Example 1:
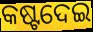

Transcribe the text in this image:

କଷ୍ଟଦେଇ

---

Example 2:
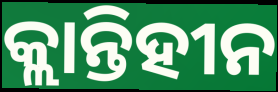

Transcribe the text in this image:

କ୍ଲାନ୍ତିହୀନ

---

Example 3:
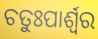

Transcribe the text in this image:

ଚତୁଃପାର୍ଶ୍ଵର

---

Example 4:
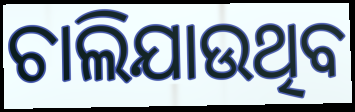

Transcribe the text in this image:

ଚାଲିଯାଉଥିବ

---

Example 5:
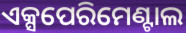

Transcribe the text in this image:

ଏକ୍ସପେରିମେଣ୍ଟାଲ